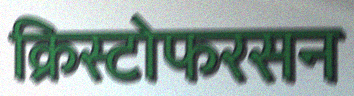
क्रिस्टोफरसन